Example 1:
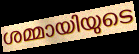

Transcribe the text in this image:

ശമ്മായിയുടെ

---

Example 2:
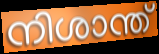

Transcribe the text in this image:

നിശാന്ത്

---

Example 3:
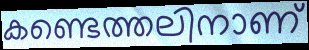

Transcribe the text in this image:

കണ്ടെത്തലിനാണ്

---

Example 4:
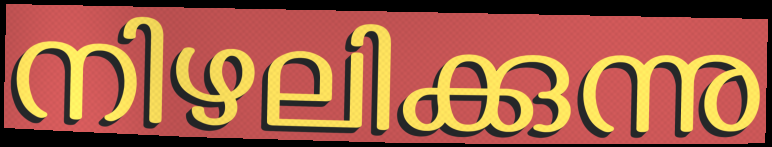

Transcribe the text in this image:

നിഴലിക്കുന്നു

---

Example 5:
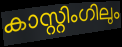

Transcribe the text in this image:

കാസ്റ്റിംഗിലും